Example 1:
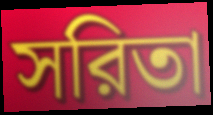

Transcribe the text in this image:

সরিতা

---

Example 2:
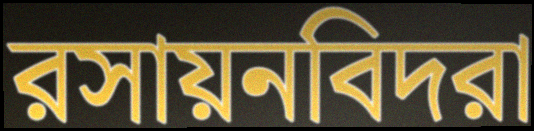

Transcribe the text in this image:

রসায়নবিদরা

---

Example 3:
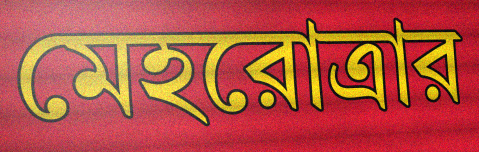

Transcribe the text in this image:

মেহরোত্রার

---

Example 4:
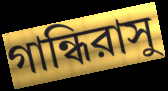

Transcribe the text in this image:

গান্ধিরাসু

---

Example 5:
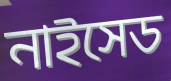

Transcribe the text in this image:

নাইসেড